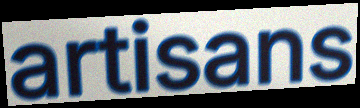
artisans